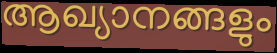
ആഖ്യാനങ്ങളും